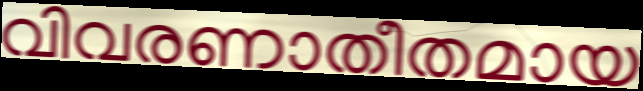
വിവരണാതീതമായ